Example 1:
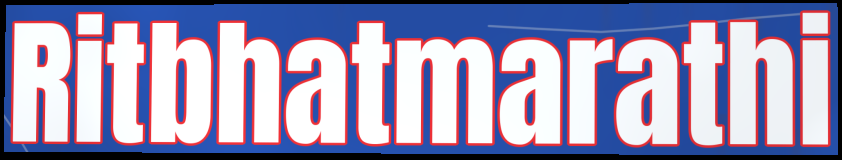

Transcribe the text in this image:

Ritbhatmarathi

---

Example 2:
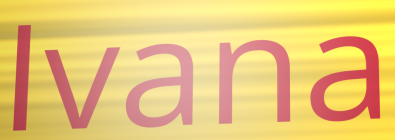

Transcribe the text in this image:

Ivana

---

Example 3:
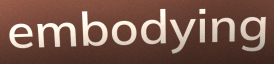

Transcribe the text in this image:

embodying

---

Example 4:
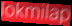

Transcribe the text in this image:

lokmilap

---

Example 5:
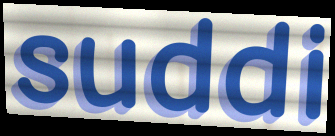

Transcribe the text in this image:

suddi